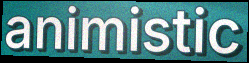
animistic